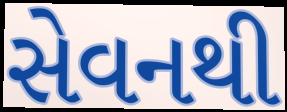
સેવનથી